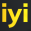
iyi